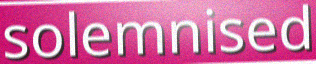
solemnised